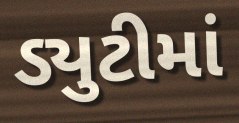
ડ્યુટીમાં